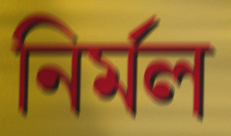
নিৰ্মল